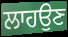
ਲਾਹਉਣ